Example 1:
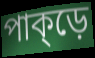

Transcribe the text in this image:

পাক্ড়ে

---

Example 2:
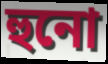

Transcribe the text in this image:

হুনো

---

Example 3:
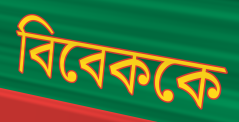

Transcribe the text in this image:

বিবেককে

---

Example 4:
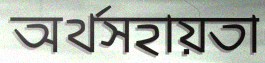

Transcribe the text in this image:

অর্থসহায়তা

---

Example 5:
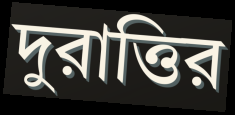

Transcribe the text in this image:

দুরাত্তির